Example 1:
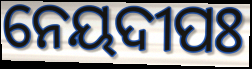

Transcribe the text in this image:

ନେୟଦୀପଃ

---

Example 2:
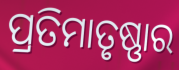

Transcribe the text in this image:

ପ୍ରତିମାତୃଷ୍ଣାର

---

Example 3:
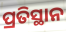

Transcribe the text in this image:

ପ୍ରତିସ୍ଥାନ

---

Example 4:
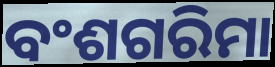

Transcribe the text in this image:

ବଂଶଗରିମା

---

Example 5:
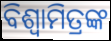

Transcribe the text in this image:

ବିଶ୍ବାମିତ୍ରଙ୍କ